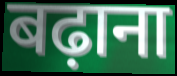
बढ़ाना